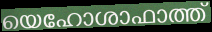
യെഹോശാഫാത്ത്